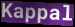
Kappal